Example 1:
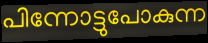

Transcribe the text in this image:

പിന്നോട്ടുപോകുന്ന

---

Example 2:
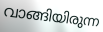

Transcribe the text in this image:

വാങ്ങിയിരുന്ന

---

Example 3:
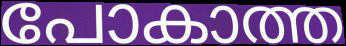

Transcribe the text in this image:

പോകാത്ത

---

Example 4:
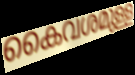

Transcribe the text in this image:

കൈവശമുള്ള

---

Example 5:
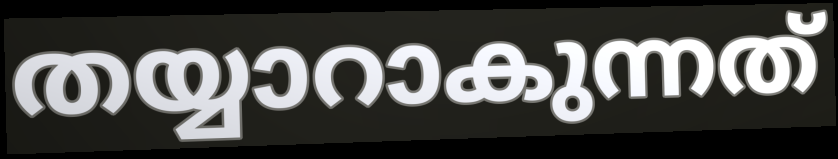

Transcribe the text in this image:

തയ്യാറാകുന്നത്